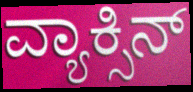
ವ್ಯಾಕ್ಸಿನ್